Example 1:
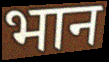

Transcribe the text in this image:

भान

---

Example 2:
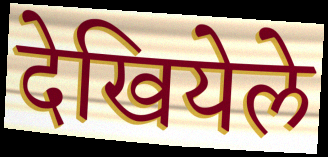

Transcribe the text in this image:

देखियेले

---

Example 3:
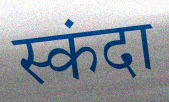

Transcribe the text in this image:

स्कंदा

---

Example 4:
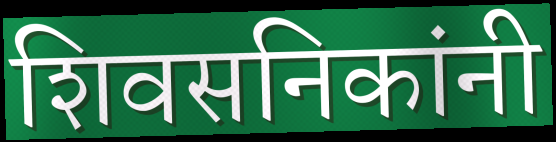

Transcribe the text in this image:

शिवसनिकांनी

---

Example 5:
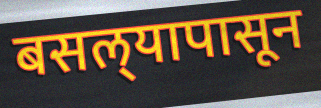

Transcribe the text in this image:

बसल्यापासून